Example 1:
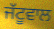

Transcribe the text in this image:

ਜੱਟੂਵਾਲ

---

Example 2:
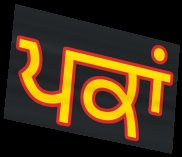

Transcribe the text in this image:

ਪਕਾਂ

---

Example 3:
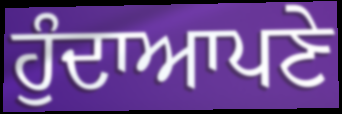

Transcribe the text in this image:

ਹੁੰਦਾਆਪਣੇ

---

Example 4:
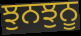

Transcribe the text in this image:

ਝੁਨਝੁਨੂ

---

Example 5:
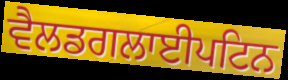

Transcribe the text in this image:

ਵੈਲਡਗਲਾਈਪਟਿਨ